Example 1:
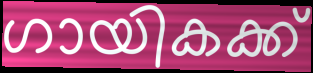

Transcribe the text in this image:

ഗായികക്ക്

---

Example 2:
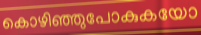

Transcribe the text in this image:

കൊഴിഞ്ഞുപോകുകയോ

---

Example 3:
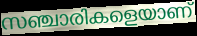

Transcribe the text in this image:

സഞ്ചാരികളെയാണ്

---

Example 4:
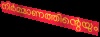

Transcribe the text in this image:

നിർമ്മാണത്തിന്റെയും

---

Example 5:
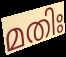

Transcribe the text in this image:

മതിഃ